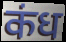
कंध